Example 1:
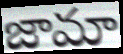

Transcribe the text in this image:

జామా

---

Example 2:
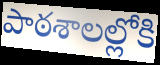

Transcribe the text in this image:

పాఠశాలల్లోకి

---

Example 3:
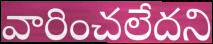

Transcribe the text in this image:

వారించలేదని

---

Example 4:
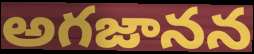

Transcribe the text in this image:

అగజానన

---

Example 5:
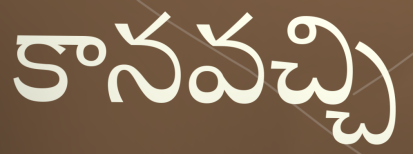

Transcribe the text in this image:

కానవచ్చి